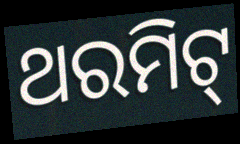
ଥରମିଟ୍